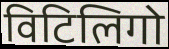
विटिलिगो